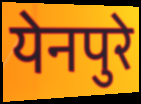
येनपुरे